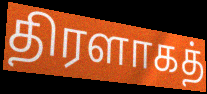
திரளாகத்